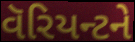
વૅરિયન્ટને